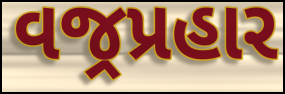
વજ્રપ્રહાર